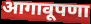
आगावूपणा